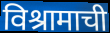
विश्रामाची